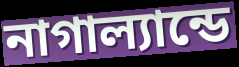
নাগাল্যান্ডে